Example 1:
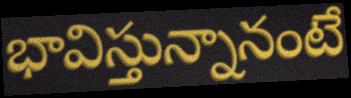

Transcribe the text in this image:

భావిస్తున్నానంటే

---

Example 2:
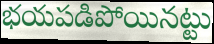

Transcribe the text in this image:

భయపడిపోయినట్టు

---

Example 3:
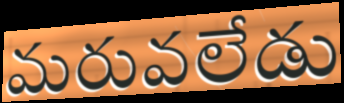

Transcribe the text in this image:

మరువలేడు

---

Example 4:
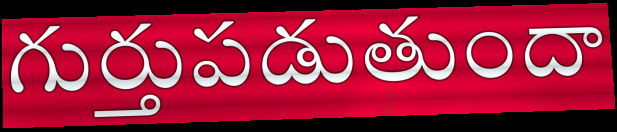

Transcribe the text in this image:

గుర్తుపడుతుందా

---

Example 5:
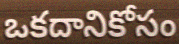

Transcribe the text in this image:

ఒకదానికోసం